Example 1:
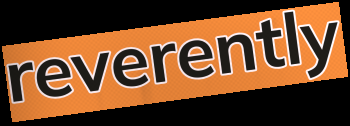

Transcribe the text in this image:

reverently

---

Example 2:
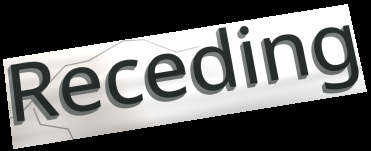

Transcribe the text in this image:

Receding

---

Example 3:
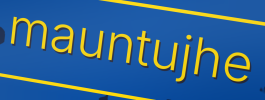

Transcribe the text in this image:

mauntujhe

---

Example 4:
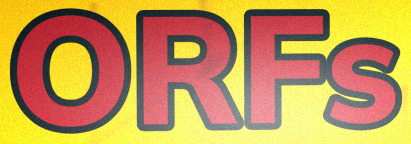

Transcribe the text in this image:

ORFs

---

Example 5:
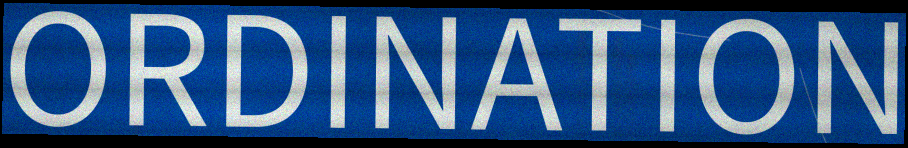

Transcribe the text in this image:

ORDINATION